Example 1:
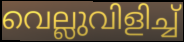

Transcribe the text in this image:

വെല്ലുവിളിച്ച്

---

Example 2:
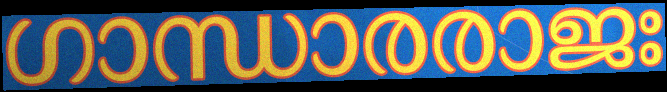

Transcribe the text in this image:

ഗാന്ധാരരാജഃ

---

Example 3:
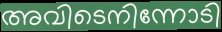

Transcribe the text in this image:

അവിടെനിന്നോടി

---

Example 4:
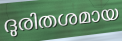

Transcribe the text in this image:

ദുരിതശമായ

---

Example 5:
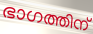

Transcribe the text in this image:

ഭാഗത്തിന്